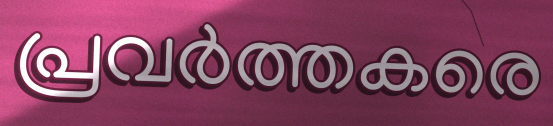
പ്രവർത്തകരെ